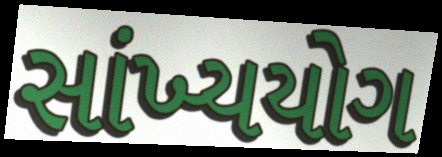
સાંખ્યયોગ